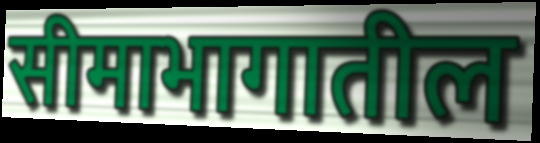
सीमाभागातील